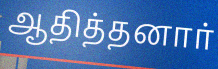
ஆதித்தனார்